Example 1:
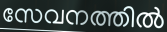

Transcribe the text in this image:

സേവനത്തിൽ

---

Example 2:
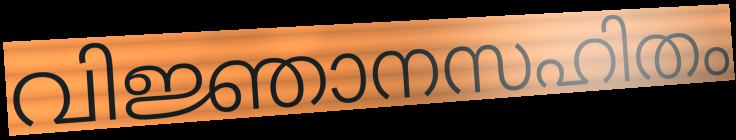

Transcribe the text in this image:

വിജ്ഞാനസഹിതം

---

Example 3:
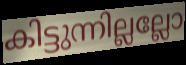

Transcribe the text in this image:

കിട്ടുന്നില്ലല്ലോ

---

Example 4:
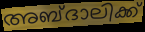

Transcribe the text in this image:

അബ്ദാലിക്ക്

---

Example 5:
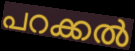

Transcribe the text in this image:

പറക്കൽ